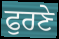
ਫੁਰਣੇ